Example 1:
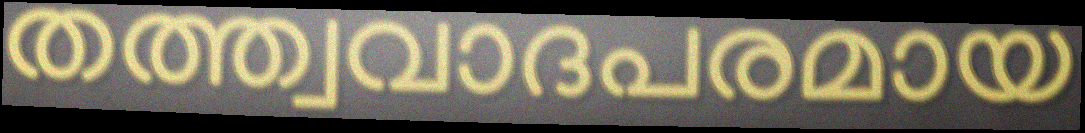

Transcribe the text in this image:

തത്ത്വവാദപരമായ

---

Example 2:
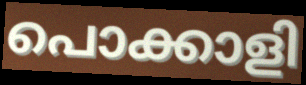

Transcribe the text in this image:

പൊക്കാളി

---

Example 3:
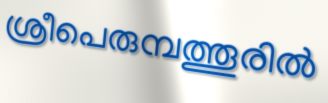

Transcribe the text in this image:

ശ്രീപെരുമ്പത്തൂരിൽ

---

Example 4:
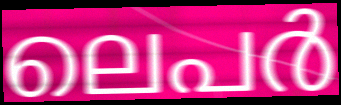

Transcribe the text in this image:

ലെപർ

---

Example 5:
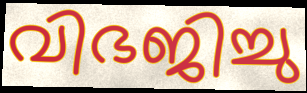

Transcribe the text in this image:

വിഭജിച്ചു